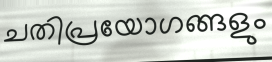
ചതിപ്രയോഗങ്ങളും